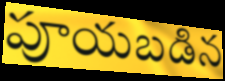
పూయబడిన